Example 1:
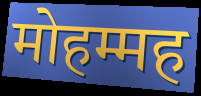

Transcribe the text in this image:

मोहम्मह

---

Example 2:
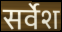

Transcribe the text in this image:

सर्वेश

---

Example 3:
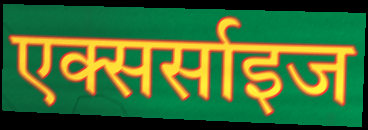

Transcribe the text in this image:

एक्सर्साइज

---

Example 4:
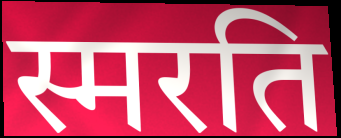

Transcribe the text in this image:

स्मरति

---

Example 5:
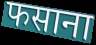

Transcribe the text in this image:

फसाना